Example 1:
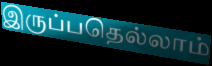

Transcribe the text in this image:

இருப்பதெல்லாம்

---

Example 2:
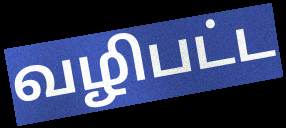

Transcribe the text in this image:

வழிபட்ட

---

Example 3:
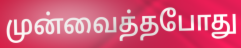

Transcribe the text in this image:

முன்வைத்தபோது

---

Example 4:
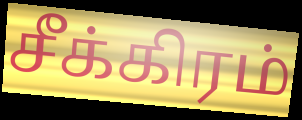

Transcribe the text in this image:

சீக்கிரம்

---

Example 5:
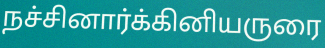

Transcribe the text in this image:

நச்சினார்க்கினியருரை